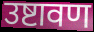
उष्टावण